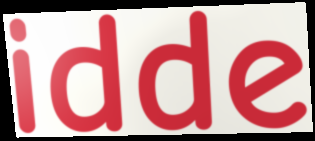
idde